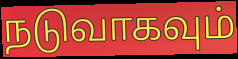
நடுவாகவும்